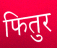
फितुर